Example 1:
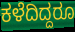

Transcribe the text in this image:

ಕಳೆದಿದ್ದರೂ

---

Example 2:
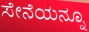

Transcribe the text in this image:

ಸೇನೆಯನ್ನೂ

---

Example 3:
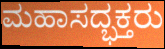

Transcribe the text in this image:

ಮಹಾಸದ್ಭಕ್ತರು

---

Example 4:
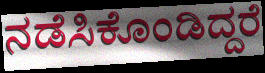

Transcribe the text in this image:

ನಡೆಸಿಕೊಂಡಿದ್ದರೆ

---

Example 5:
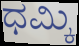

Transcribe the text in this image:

ಧಮ್ಕಿ